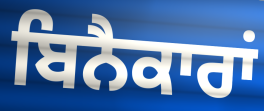
ਬਿਨੈਕਾਰਾਂ